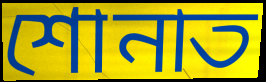
শোনাত